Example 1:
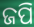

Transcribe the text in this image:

ଜପି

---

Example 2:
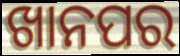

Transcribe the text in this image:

ଖାନପର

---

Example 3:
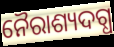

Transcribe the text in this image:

ନୈରାଶ୍ୟଦଗ୍ଧ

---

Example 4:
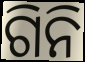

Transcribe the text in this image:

ଗିନି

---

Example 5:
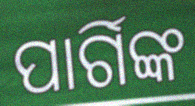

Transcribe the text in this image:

ପାର୍ଗିଙ୍କ